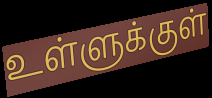
உள்ளுக்குள்